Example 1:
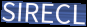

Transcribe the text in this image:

SIRECL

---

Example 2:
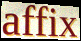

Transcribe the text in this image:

affix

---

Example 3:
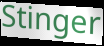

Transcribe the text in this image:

Stinger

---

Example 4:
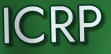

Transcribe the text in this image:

ICRP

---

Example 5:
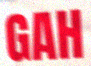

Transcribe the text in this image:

GAH